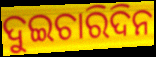
ଦୁଇଚାରିଦିନ